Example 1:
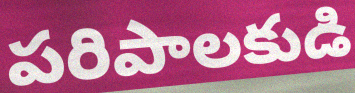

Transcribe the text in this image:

పరిపాలకుడి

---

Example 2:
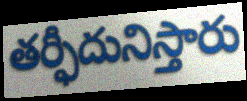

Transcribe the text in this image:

తర్ఫీదునిస్తారు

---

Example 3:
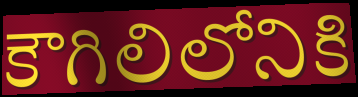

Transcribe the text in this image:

కౌగిలిలోనికి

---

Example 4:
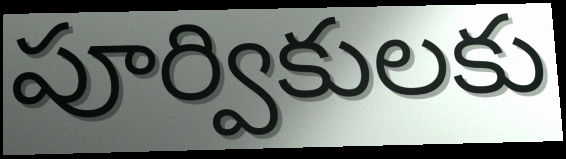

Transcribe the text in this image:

పూర్వికులకు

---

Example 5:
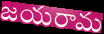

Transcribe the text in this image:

జయరామ